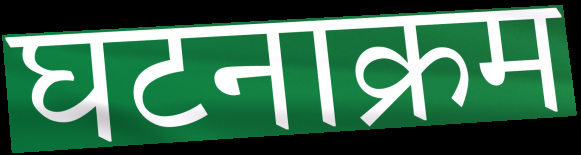
घटनाक्रम